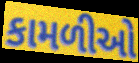
કામળીઓ